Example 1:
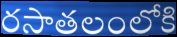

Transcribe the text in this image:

రసాతలంలోకి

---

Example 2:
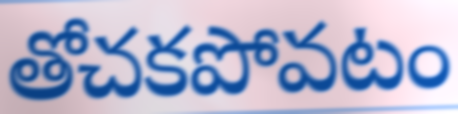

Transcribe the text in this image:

తోచకపోవటం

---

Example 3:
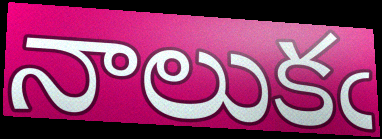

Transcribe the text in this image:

నాలుకఁ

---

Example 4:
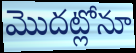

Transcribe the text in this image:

మొదట్లోనూ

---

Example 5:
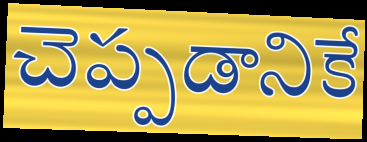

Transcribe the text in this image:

చెప్పడానికే